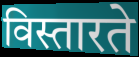
विस्तारते